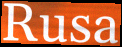
Rusa